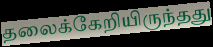
தலைக்கேறியிருந்தது